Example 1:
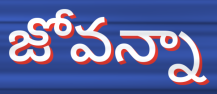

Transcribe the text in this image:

జోవన్నా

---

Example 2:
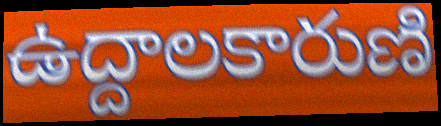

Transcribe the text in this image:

ఉద్దాలకారుణి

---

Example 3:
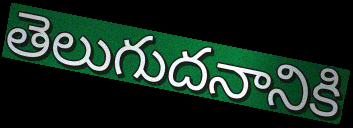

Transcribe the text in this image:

తెలుగుదనానికి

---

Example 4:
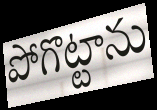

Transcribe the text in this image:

పోగొట్టాను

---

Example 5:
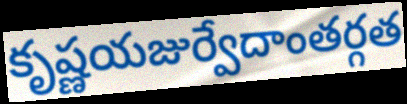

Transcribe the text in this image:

కృష్ణయజుర్వేదాంతర్గత